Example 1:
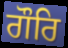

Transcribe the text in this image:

ਗੌਰਿ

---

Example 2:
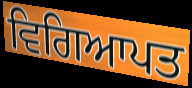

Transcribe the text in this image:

ਵਿਗਿਆਪਤ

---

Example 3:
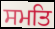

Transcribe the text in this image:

ਸਮਤਿ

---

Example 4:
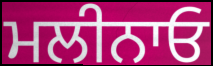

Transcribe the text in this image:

ਮਲੀਨਾਓ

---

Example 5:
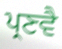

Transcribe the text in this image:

ਪ੍ਰਣਵੈ